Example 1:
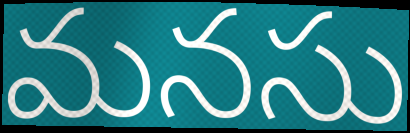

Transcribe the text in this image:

మనసు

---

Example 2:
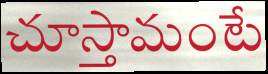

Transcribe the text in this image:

చూస్తామంటే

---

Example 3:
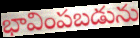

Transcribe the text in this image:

భావింపబడును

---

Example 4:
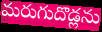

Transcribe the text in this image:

మరుగుదొడ్లను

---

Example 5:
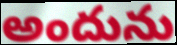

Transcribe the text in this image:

అందును